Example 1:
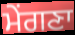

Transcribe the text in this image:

ਮੇਂਗਣਾ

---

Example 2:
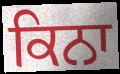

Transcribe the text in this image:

ਕਿਨਾ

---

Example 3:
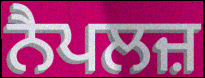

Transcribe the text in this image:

ਨੈਪਲਜ਼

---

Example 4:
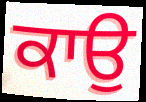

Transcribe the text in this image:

ਕਾਉ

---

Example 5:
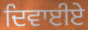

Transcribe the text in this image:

ਦਿਵਾਈਏ